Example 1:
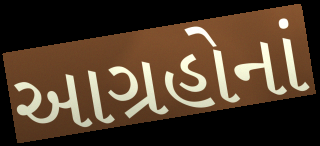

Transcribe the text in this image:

આગ્રહોનાં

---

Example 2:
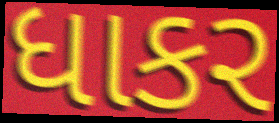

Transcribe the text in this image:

ધાકર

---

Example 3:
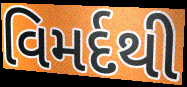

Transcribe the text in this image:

વિમર્દથી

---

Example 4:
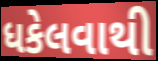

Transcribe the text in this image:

ધકેલવાથી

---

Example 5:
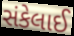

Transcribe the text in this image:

સંકેલાઈ